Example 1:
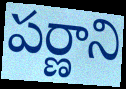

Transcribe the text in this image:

పర్ణాని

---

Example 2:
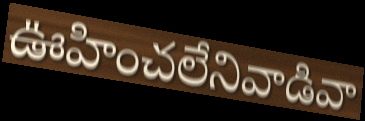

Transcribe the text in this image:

ఊహించలేనివాడివా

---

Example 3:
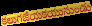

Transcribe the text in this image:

కలుగజేయకయునుండు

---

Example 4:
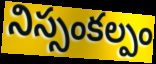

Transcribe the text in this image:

నిస్సంకల్పం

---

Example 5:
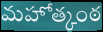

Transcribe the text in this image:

మహోత్కంఠ